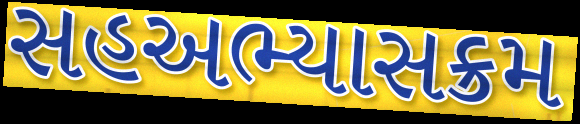
સહઅભ્યાસક્રમ